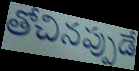
తోచినప్పుడే